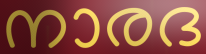
നാരദ